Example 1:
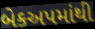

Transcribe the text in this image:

બેકઅપમાંથી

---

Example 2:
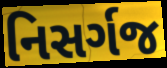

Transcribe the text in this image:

નિસર્ગજ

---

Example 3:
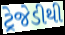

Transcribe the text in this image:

ટ્રેજેડીથી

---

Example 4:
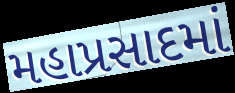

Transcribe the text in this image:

મહાપ્રસાદમાં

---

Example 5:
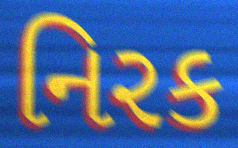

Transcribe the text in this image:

નિરક